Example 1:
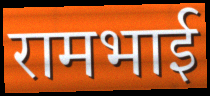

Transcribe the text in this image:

रामभाई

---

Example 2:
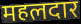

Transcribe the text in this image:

महलदार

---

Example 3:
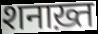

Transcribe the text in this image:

शनाख़्त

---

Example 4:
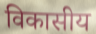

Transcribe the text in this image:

विकासीय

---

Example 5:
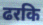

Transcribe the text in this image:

ढरकि